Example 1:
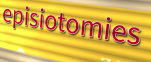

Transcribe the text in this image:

episiotomies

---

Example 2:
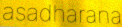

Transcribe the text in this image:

asadharana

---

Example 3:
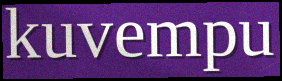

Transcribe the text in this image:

kuvempu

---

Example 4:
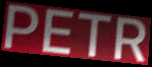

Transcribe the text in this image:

PETR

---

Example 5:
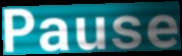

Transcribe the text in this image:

Pause